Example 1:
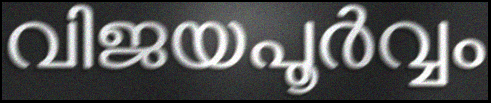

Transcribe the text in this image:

വിജയപൂർവ്വം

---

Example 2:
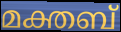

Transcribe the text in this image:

മക്തബ്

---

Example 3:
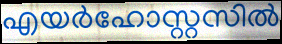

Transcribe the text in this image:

എയർഹോസ്റ്റസിൽ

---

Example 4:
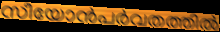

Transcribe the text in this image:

സീയോൻപർവതത്തിൽ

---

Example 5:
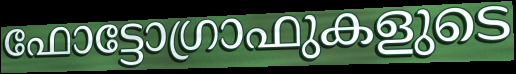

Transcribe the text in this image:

ഫോട്ടോഗ്രാഫുകളുടെ